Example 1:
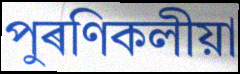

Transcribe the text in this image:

পুৰণিকলীয়া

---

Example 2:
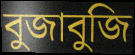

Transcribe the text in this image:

বুজাবুজি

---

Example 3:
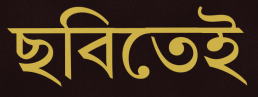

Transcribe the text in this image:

ছবিতেই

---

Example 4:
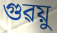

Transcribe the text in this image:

গুৱয়ু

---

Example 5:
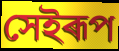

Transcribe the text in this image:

সেইৰূপ